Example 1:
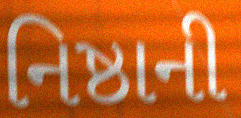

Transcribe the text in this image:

નિષ્ઠાની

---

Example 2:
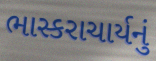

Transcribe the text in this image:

ભાસ્કરાચાર્યનું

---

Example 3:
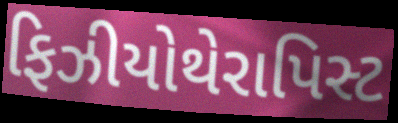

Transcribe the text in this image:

ફિઝીયોથેરાપિસ્ટ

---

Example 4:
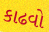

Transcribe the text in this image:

કાઢવો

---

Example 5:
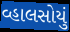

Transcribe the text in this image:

વ્હાલસોયું